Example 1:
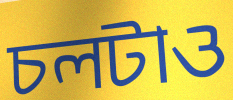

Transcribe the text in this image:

চলটাও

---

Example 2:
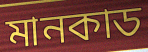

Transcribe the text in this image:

মানকাড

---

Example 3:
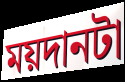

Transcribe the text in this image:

ময়দানটা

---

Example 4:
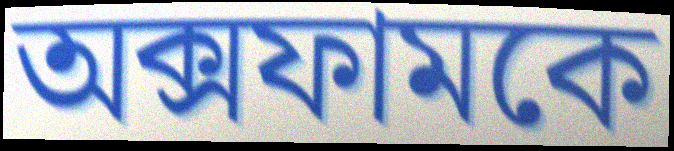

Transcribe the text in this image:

অক্সফামকে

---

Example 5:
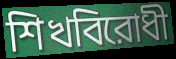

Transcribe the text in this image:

শিখবিরোধী